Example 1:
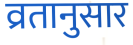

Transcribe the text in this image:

व्रतानुसार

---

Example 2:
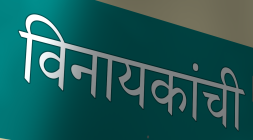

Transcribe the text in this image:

विनायकांची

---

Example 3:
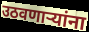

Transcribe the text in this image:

उठवणाऱ्यांना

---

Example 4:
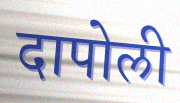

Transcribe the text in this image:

दापोली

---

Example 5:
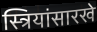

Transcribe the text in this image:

स्त्रियांसारखे